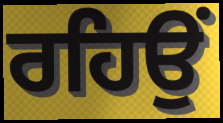
ਰਹਿਉਂ